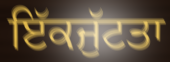
ਇੱਕਜੁੱਟਤਾ